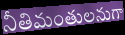
నీతిమంతులనుగా